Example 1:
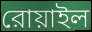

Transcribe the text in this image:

রোয়াইল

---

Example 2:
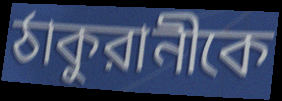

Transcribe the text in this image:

ঠাকুরানীকে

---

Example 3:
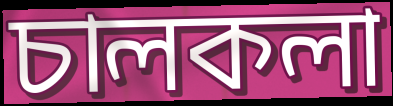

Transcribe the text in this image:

চালকলা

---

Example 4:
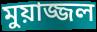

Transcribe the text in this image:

মুয়াজ্জল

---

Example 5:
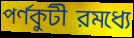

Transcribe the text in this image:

পর্ণকুটীরমধ্যে